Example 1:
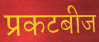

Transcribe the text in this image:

प्रकटबीज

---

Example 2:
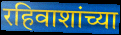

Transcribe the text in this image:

रहिवाशांच्या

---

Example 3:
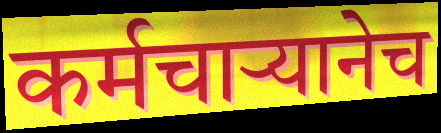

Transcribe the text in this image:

कर्मचाऱ्यानेच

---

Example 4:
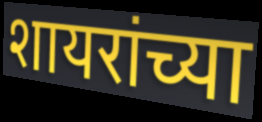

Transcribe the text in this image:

शायरांच्या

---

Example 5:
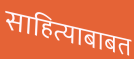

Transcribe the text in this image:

साहित्याबाबत